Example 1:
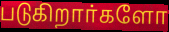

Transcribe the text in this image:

படுகிறார்களோ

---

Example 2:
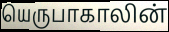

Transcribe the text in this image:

யெருபாகாலின்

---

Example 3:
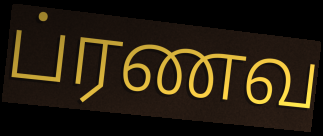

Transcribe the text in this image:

ப்ரணவ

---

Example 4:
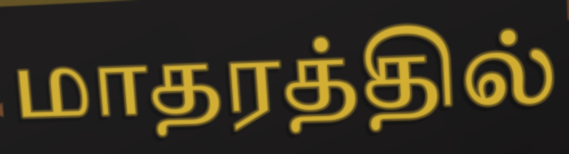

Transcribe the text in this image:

மாதரத்தில்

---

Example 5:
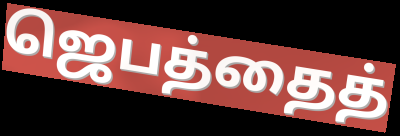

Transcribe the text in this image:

ஜெபத்தைத்